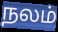
நலம்